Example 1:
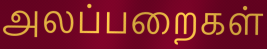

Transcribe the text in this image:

அலப்பறைகள்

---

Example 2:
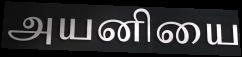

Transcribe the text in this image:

அயனியை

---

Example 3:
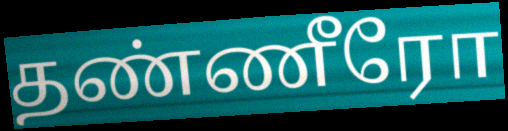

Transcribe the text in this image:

தண்ணீரோ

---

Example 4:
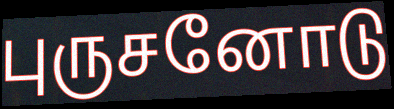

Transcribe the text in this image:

புருசனோடு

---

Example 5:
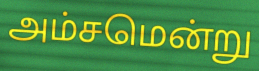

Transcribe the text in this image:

அம்சமென்று